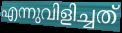
എന്നുവിളിച്ചത്